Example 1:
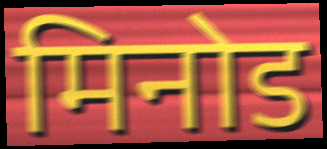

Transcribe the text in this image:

मिनोड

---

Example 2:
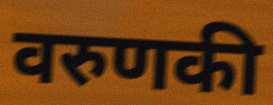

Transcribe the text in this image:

वरुणकी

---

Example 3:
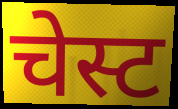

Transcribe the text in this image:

चेस्ट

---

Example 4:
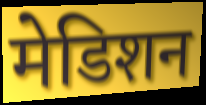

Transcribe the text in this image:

मेडिशन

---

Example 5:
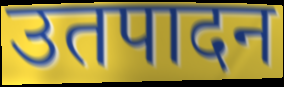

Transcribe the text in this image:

उतपादन